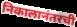
निकालानंतरची